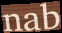
nab